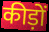
कीड़ों